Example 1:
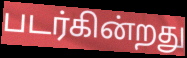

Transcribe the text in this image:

படர்கின்றது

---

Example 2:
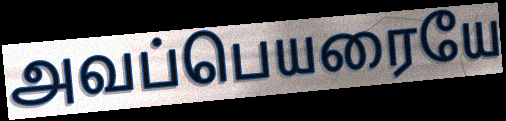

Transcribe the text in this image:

அவப்பெயரையே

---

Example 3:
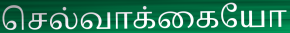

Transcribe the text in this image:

செல்வாக்கையோ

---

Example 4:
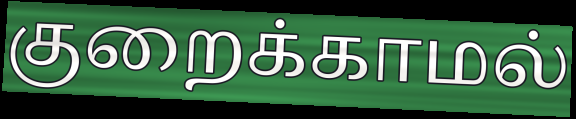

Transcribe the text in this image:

குறைக்காமல்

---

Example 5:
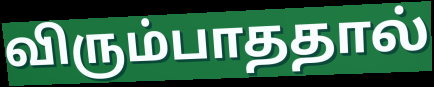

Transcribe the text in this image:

விரும்பாததால்